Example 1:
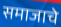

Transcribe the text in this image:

समाजाचे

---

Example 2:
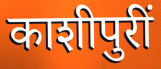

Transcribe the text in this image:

काशीपुरीं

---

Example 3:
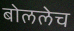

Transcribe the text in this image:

बोललेच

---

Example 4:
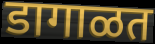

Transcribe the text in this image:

डागाळत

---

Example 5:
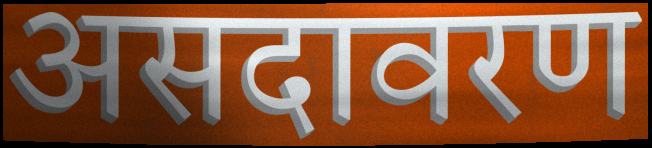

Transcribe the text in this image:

असदावरण